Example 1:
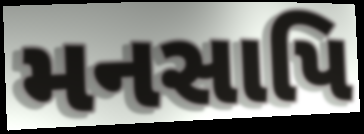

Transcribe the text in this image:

મનસાપિ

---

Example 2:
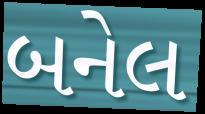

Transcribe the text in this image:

બનેલ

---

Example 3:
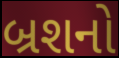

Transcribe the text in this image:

બ્રશનો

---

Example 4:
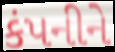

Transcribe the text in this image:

કંપનીને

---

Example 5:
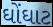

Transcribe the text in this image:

ઘોંઘાટ